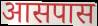
आसपास